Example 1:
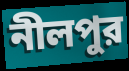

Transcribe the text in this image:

নীলপুর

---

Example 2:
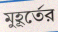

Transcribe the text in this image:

মুহূর্তের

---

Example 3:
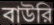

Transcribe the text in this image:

বাউরি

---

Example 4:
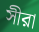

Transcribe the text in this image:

সীরা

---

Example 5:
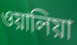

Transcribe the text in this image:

ওয়ালিয়া